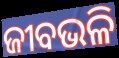
ଜୀବଭଳି